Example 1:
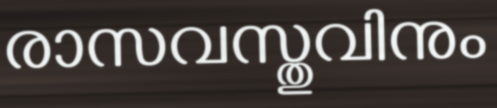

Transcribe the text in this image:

രാസവസ്തുവിനും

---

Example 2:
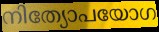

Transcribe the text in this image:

നിത്യോപയോഗ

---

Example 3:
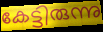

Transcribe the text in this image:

കേട്ടിരുന്നു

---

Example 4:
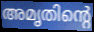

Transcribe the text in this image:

അമൃതിന്റെ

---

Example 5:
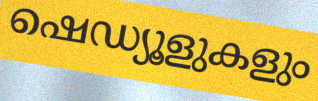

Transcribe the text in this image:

ഷെഡ്യൂളുകളും